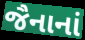
જૈનાનાં